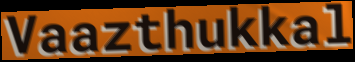
Vaazthukkal